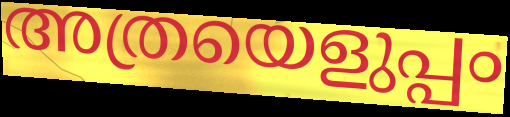
അത്രയെളുപ്പം